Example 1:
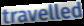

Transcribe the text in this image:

travelled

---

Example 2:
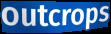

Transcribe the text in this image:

outcrops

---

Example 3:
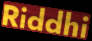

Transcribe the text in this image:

Riddhi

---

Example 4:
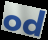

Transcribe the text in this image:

od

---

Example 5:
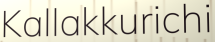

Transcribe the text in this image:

Kallakkurichi